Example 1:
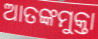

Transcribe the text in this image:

ଆତଙ୍କମୁକ୍ତା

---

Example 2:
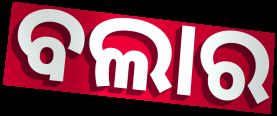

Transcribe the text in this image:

ବଲାର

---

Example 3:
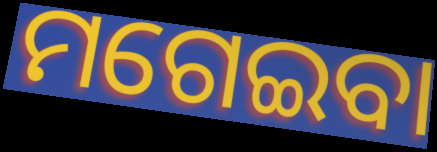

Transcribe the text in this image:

ମଗେଇବା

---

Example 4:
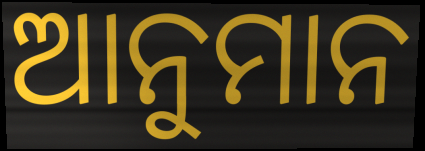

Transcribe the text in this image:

ଆନୁମାନ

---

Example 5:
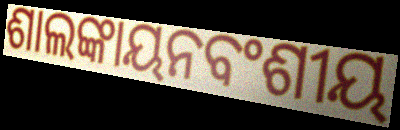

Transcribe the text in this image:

ଶାଲଙ୍କାୟନବଂଶୀୟ